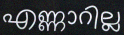
എണ്ണാറില്ല